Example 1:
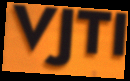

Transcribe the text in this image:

VJTI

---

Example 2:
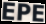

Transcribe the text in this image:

EPE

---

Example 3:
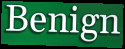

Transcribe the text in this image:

Benign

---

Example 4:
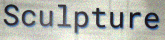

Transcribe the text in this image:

Sculpture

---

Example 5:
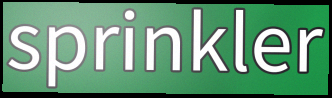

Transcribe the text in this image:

sprinkler